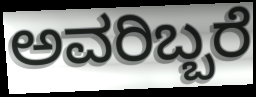
ಅವರಿಬ್ಬರೆ